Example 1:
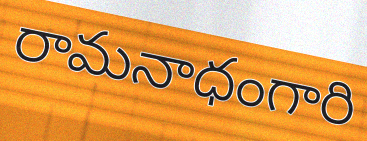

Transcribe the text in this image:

రామనాధంగారి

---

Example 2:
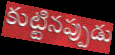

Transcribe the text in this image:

కుట్టినప్పుడు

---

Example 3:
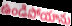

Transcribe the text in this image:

ఉండిపోయాను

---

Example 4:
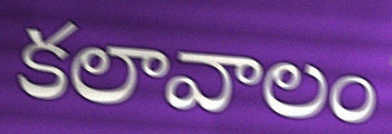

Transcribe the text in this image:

కలావాలం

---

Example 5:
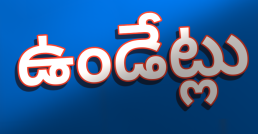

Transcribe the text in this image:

ఉండేట్లు